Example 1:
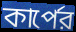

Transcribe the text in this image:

কার্পের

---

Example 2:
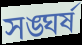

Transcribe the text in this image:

সঙ্ঘর্ষ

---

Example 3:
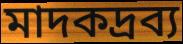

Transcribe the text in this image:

মাদকদ্রব্য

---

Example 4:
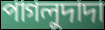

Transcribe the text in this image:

পাগলুদাদা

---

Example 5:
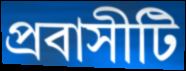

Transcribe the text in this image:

প্রবাসীটি